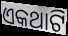
ଏକଥାଟି